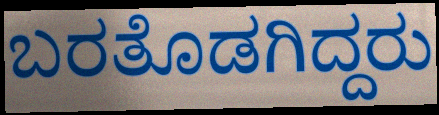
ಬರತೊಡಗಿದ್ದರು